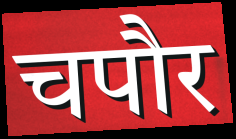
चपौर